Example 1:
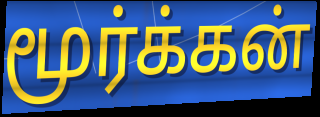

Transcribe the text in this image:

மூர்க்கன்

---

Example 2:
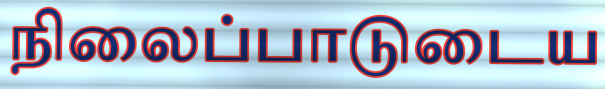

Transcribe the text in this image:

நிலைப்பாடுடைய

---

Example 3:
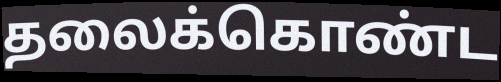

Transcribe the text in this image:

தலைக்கொண்ட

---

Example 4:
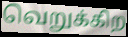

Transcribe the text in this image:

வெறுக்கிற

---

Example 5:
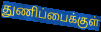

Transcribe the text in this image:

துணிப்பைக்குள்